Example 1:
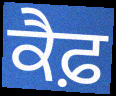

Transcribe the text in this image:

ਕੈਫ਼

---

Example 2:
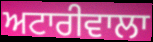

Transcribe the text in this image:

ਅਟਾਰੀਵਾਲਾ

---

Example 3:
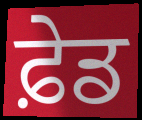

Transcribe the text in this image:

ਫ਼ੇਡ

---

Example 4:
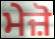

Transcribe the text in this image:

ਮੇਜ਼ੋ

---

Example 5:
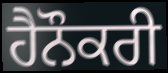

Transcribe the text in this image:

ਹੈਨੌਕਰੀ